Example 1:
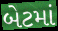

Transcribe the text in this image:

બેટમાં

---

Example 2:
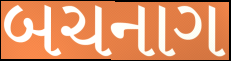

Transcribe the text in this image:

બચનાગ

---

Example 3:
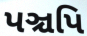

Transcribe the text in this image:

પઞ્ચપિ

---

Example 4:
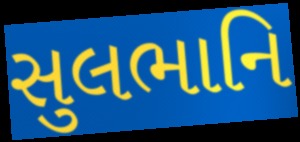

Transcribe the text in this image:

સુલભાનિ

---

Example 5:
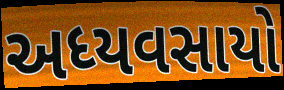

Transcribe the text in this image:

અધ્યવસાયો